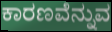
ಕಾರಣವೆನ್ನುವ